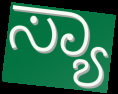
ಸ್ಯಾ